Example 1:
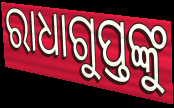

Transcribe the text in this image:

ରାଧାଗୁପ୍ତଙ୍କୁ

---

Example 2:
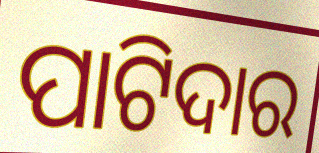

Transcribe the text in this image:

ପାଟିଦାର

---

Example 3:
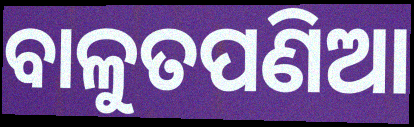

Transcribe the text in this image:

ବାଳୁତପଣିଆ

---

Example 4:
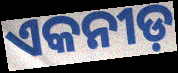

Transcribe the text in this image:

ଏକନୀଡ଼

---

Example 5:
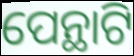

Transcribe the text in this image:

ପେନ୍ଥାଟି